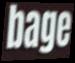
bage